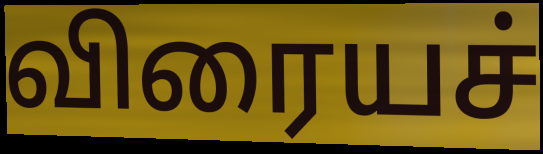
விரையச்